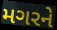
મગરને